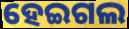
ହେଇଗଲ